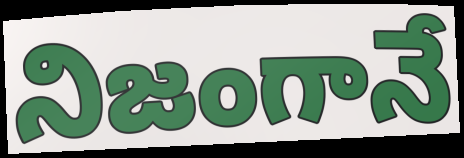
నిజంగానే